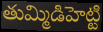
తుమ్మిడిహెట్టి